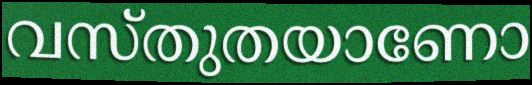
വസ്തുതയാണോ